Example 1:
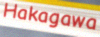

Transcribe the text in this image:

Hakagawa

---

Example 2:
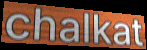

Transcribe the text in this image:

chalkat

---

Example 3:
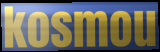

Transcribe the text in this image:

kosmou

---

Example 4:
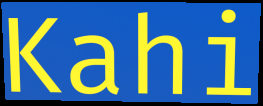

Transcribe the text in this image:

Kahi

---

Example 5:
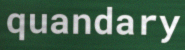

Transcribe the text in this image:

quandary